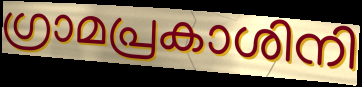
ഗ്രാമപ്രകാശിനി